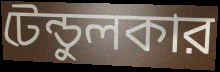
টেন্ডুলকার